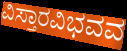
ವಿಸ್ತಾರವಿಭವವ